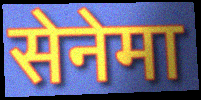
सेनेमा